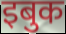
इबुक